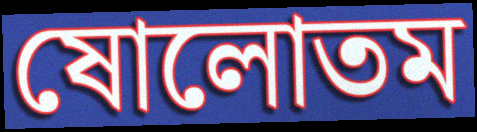
ষোলোতম